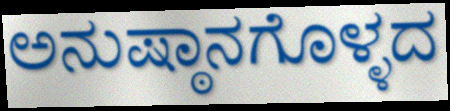
ಅನುಷ್ಠಾನಗೊಳ್ಳದ